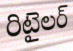
రిటైలర్